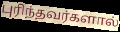
புரிந்தவர்களால்